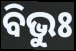
ବିଭୁଃ